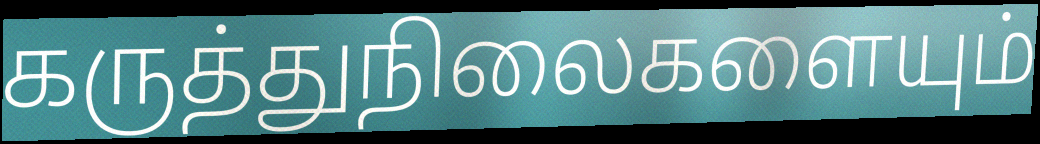
கருத்துநிலைகளையும்